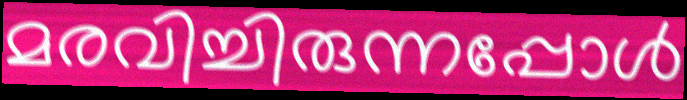
മരവിച്ചിരുന്നപ്പോൾ